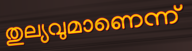
തുല്യവുമാണെന്ന്